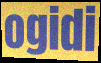
ogidi